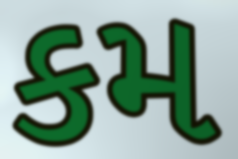
કમ